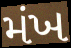
મંખ